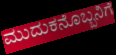
ಮುದುಕನೊಬ್ಬನಿಗೆ